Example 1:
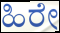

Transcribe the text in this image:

ಹಿರೇ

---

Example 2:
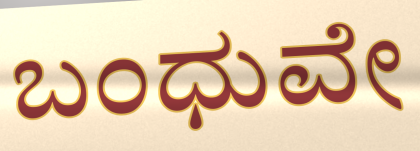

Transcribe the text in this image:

ಬಂಧುವೇ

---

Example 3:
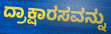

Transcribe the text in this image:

ದ್ರಾಕ್ಷಾರಸವನ್ನು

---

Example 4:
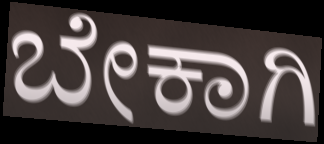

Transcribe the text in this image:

ಬೇಕಾಗಿ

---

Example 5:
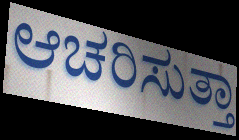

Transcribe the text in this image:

ಆಚರಿಸುತ್ತಾ